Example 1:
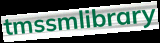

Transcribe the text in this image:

tmssmlibrary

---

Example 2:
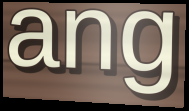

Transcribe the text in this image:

ang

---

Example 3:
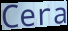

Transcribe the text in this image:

Cera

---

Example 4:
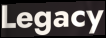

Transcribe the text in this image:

Legacy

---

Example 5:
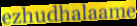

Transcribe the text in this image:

ezhudhalaame